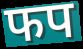
फप